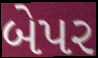
બેપર